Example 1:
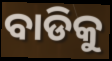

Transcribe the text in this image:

ବାଡିକୁ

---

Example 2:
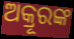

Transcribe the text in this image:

ଅକ୍ରୂରଙ୍କ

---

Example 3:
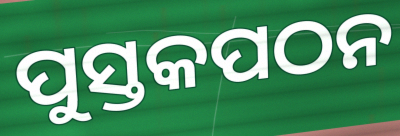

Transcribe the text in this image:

ପୁସ୍ତକପଠନ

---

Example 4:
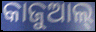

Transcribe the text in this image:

କାଜୁଆଲ୍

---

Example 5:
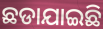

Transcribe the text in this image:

ଛଡାଯାଇଛି